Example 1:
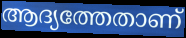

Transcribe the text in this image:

ആദ്യത്തേതാണ്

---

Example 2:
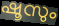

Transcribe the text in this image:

ഷൂസും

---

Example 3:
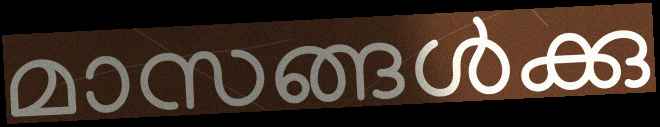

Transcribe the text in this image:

മാസങ്ങൾക്കു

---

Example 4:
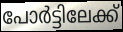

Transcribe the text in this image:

പോർട്ടിലേക്ക്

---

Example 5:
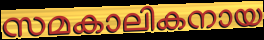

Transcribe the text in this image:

സമകാലികനായ